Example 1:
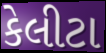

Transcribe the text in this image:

કેલીટા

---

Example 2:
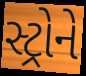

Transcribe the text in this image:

સ્ટ્રોને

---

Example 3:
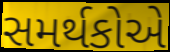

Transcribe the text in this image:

સમર્થકોએ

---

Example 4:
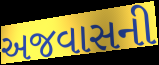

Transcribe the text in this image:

અજવાસની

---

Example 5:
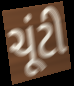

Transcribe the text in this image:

ચૂંટી